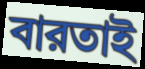
বারতাই